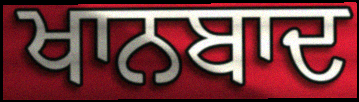
ਖਾਨਬਾਦ